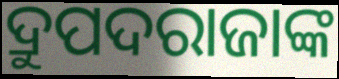
ଦ୍ରୁପଦରାଜାଙ୍କ